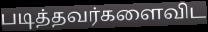
படித்தவர்களைவிட